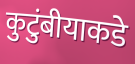
कुटुंबीयाकडे